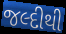
જલ્દીથી